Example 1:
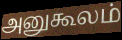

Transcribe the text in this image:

அனுகூலம்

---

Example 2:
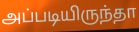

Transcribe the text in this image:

அப்படியிருந்தா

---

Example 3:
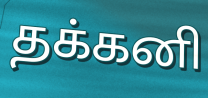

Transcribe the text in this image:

தக்கனி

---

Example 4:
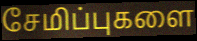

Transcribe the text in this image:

சேமிப்புகளை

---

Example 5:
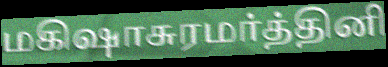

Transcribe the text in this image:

மகிஷாசுரமர்த்தினி